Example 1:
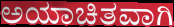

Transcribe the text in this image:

ಅಯಾಚಿತವಾಗಿ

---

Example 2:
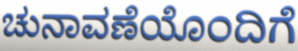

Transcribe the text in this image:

ಚುನಾವಣೆಯೊಂದಿಗೆ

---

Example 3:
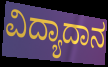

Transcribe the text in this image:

ವಿದ್ಯಾದಾನ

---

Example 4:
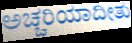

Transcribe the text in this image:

ಅಚ್ಚರಿಯಾದೀತು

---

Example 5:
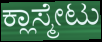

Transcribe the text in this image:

ಕ್ಲಾಸ್ಮೇಟು